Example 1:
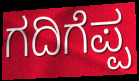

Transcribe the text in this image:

ಗದಿಗೆಪ್ಪ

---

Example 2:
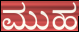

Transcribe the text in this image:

ಮುಹ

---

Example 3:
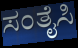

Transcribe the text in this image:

ಸಂತೈಸಿ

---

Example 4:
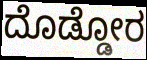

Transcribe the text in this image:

ದೊಡ್ಡೋರ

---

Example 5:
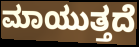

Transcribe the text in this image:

ಮಾಯುತ್ತದೆ